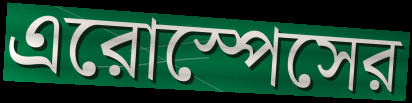
এরোস্পেসের